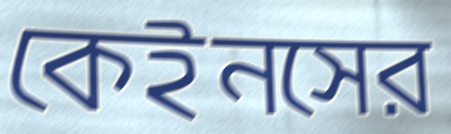
কেইনসের